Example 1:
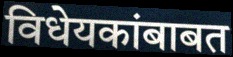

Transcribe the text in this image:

विधेयकांबाबत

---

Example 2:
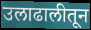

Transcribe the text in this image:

उलाढालीतून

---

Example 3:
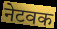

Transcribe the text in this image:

नेटवक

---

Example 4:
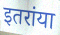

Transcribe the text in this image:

इतरांया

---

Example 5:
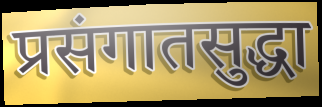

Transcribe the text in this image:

प्रसंगातसुद्धा